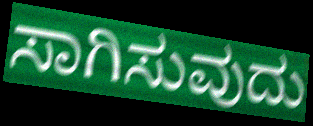
ಸಾಗಿಸುವುದು